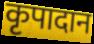
कृपादान